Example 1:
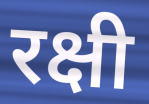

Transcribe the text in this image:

रक्षी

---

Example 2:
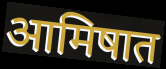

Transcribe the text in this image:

आमिषात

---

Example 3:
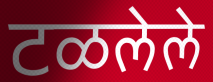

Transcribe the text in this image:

टळलेले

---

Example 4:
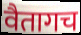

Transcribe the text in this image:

वैतागच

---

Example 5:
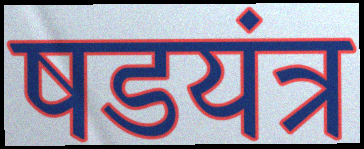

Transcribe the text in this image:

षडयंत्र